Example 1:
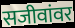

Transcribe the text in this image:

सजीवांवर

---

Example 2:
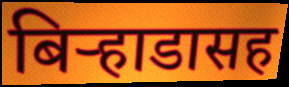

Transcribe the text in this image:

बिऱ्हाडासह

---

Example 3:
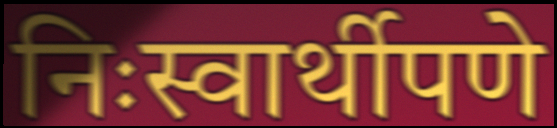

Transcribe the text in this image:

निःस्वार्थीपणे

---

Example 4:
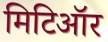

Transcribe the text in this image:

मिटिऑर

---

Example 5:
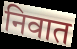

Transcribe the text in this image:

निवात